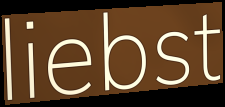
liebst